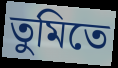
তুমিতে